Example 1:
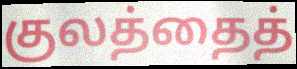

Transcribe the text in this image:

குலத்தைத்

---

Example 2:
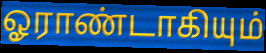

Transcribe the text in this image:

ஓராண்டாகியும்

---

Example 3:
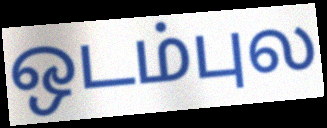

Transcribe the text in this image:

ஒடம்புல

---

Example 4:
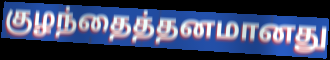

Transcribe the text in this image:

குழந்தைத்தனமானது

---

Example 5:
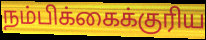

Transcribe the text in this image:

நம்பிக்கைக்குரிய